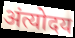
अंत्योदय